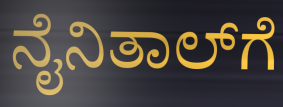
ನೈನಿತಾಲ್‌ಗೆ